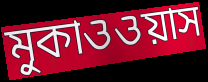
মুকাওওয়াস